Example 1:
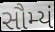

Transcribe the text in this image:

સૌમ્યં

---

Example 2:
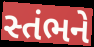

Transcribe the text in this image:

સ્તંભને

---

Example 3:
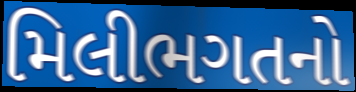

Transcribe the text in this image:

મિલીભગતનો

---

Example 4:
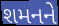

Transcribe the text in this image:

શમનને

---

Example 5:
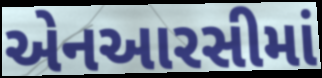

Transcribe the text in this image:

એનઆરસીમાં